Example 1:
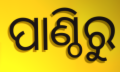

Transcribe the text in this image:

ପାଣ୍ଠିରୁ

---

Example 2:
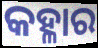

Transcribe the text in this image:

କହ୍ଳାର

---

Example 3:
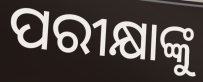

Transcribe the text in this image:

ପରୀକ୍ଷାଙ୍କୁ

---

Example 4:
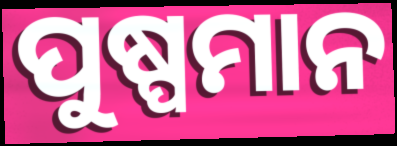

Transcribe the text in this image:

ପୁଷ୍ପମାନ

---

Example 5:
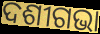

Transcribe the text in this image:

ଦଶୀଗଭା